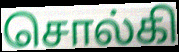
சொல்கி